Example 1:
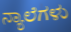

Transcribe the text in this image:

ನ್ಯಾಲೆಗಳು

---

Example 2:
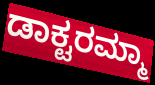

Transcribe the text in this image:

ಡಾಕ್ಟರಮ್ಮಾ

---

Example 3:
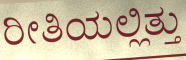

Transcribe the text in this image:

ರೀತಿಯಲ್ಲಿತ್ತು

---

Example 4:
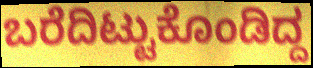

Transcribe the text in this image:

ಬರೆದಿಟ್ಟುಕೊಂಡಿದ್ದ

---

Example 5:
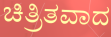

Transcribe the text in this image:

ಚಿತ್ರಿತವಾದ